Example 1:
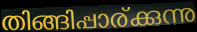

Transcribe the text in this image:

തിങ്ങിപ്പാര്ക്കുന്നു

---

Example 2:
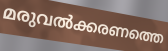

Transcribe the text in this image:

മരുവൽക്കരണത്തെ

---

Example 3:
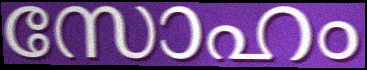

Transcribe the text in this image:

സോഹം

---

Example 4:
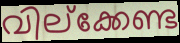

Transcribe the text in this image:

വില്ക്കേണ്ട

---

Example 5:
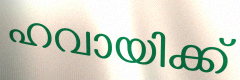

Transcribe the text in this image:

ഹവായിക്ക്